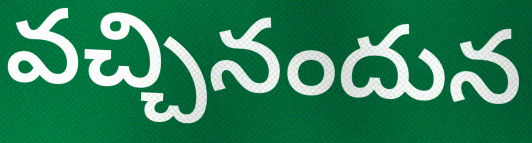
వచ్చినందున